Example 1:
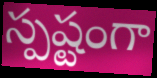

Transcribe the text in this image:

స్పష్టంగా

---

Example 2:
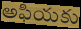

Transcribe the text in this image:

అఫియకు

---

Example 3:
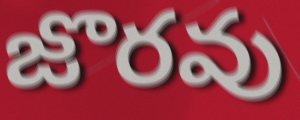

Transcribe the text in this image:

జొరవు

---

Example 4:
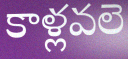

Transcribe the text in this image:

కాళ్లవలె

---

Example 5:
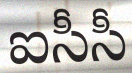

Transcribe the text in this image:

ఐసీసీ